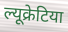
ल्यूक्रेटिया